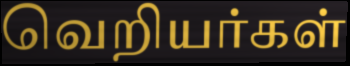
வெறியர்கள்